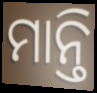
ମାନ୍ତି